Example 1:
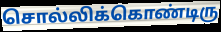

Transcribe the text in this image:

சொல்லிக்கொண்டிரு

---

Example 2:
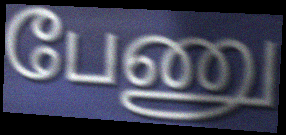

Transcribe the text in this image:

பேணு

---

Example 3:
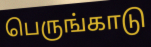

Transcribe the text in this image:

பெருங்காடு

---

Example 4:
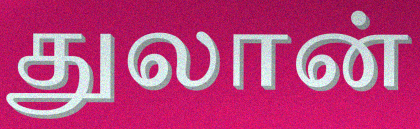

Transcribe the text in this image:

துலான்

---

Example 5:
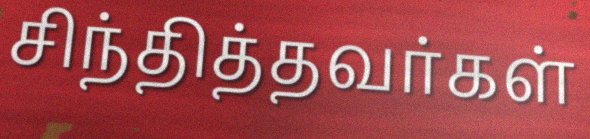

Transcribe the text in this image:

சிந்தித்தவர்கள்